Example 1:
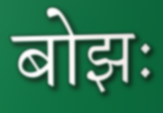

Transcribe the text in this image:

बोझः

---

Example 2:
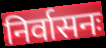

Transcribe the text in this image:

निर्वासनः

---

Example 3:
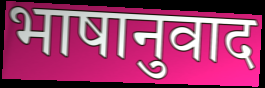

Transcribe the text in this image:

भाषानुवाद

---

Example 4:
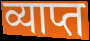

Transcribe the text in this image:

व्‍याप्‍त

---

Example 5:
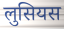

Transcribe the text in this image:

लुसियस